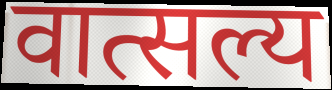
वात्सल्य